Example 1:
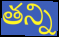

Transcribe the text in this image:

తన్ని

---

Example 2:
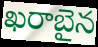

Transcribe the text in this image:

ఖరాబైన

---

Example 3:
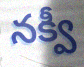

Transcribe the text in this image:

నక్వీ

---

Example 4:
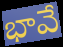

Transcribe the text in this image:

భావే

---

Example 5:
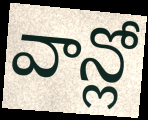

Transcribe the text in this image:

వాన్లో